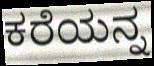
ಕರೆಯನ್ನ